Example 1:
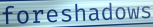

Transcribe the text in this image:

foreshadows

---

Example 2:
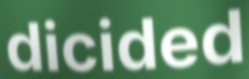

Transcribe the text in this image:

dicided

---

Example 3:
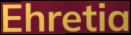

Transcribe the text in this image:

Ehretia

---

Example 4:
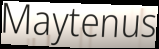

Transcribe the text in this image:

Maytenus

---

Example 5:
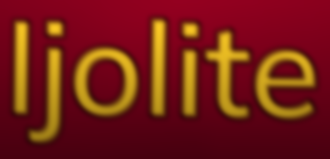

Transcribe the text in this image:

Ijolite